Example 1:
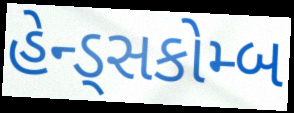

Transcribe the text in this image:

હેન્ડ્સકોમ્બ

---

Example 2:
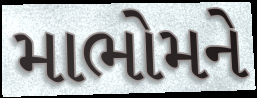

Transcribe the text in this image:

માભોમને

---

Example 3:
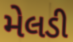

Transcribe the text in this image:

મેલડી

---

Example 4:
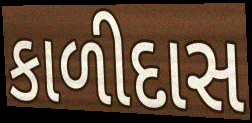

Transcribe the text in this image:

કાળીદાસ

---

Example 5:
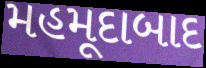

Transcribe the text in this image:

મહમૂદાબાદ